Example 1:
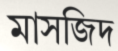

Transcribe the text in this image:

মাসজিদ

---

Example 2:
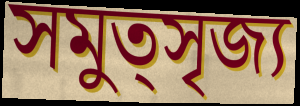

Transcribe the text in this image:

সমুত্সৃজ্য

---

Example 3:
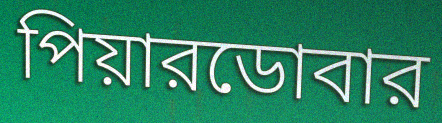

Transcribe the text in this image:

পিয়ারডোবার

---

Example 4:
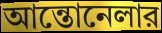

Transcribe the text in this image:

আন্তোনেলার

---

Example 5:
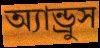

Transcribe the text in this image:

অ্যান্ড্রুস